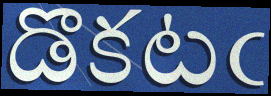
డొకటఁ